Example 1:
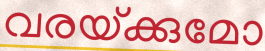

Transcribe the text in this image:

വരയ്‌ക്കുമോ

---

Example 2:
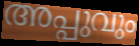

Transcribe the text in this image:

അപ്പുവും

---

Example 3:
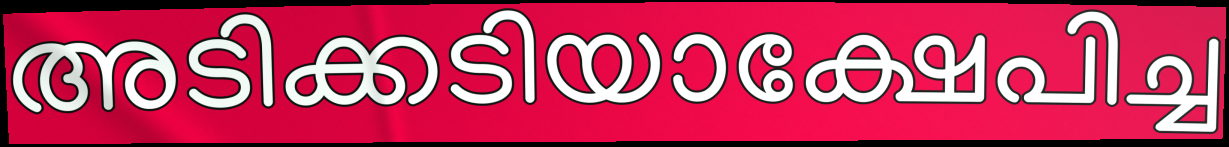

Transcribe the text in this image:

അടിക്കടിയാക്ഷേപിച്ച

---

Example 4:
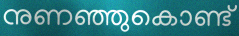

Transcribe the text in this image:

നുണഞ്ഞുകൊണ്ട്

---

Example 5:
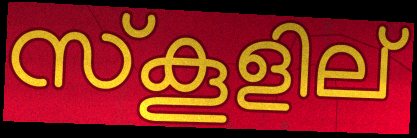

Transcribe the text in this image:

സ്കൂളില്